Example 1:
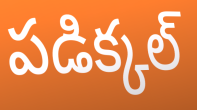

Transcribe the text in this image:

పడిక్కల్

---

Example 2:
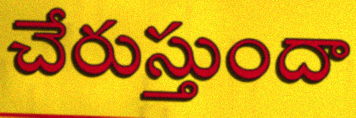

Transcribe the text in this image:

చేరుస్తుందా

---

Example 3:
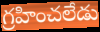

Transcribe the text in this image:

గ్రహించలేడు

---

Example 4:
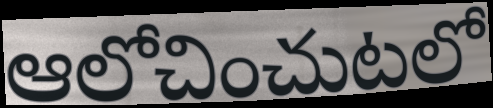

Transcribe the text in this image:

ఆలోచించుటలో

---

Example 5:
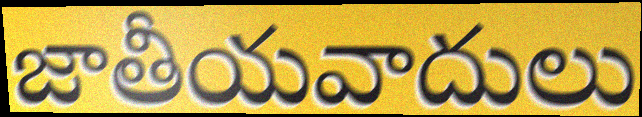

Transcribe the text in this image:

జాతీయవాదులు